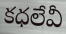
కధలేవీ